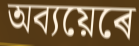
অব্যয়েৰে